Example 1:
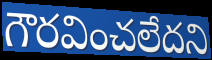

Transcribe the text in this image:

గౌరవించలేదని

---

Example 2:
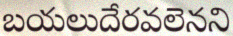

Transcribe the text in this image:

బయలుదేరవలెనని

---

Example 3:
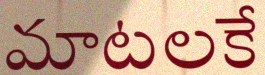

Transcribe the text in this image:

మాటలకే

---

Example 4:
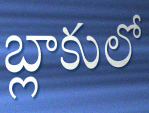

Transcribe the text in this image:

బ్లాకులో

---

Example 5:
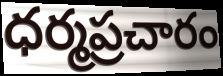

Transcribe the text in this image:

ధర్మప్రచారం